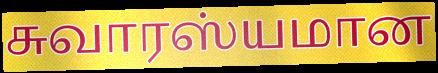
சுவாரஸ்யமான